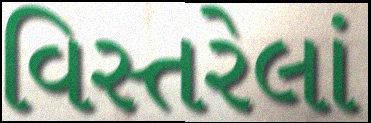
વિસ્તરેલાં